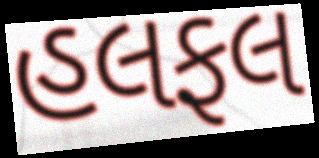
હલફલ